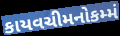
કાયવચીમનોકમ્મં